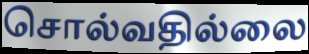
சொல்வதில்லை